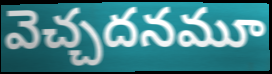
వెచ్చదనమూ